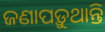
ଜଣାପଡ଼ୁଥାନ୍ତି